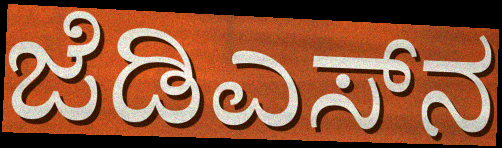
ಜೆಡಿಎಸ್‌ನ